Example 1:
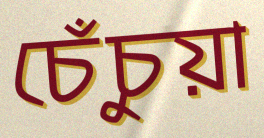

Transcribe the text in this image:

চেঁচুয়া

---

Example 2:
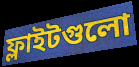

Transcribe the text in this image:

ফ্লাইটগুলো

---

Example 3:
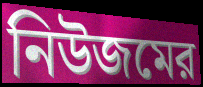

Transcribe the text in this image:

নিউজমের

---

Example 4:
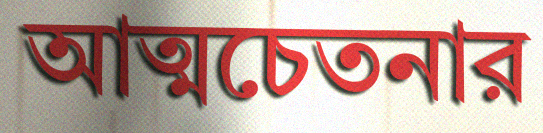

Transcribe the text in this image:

আত্মচেতনার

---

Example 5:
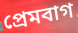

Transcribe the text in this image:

প্রেমবাগ